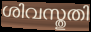
ശിവസ്തുതി